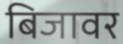
बिजावर